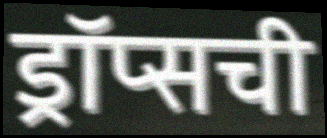
ड्रॉप्सची